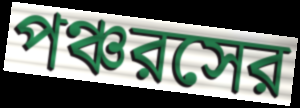
পঞ্চরসের